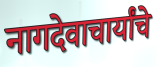
नागदेवाचार्यांचे